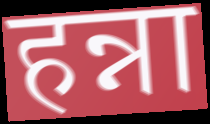
हन्ना